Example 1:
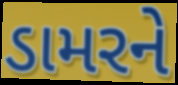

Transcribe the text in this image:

ડામરને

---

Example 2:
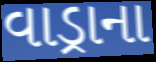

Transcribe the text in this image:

વાડ્રાના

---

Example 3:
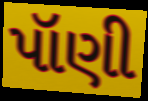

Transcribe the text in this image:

પૉણી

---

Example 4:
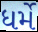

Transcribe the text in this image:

ધર્મે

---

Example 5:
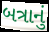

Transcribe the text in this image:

બત્રાનું